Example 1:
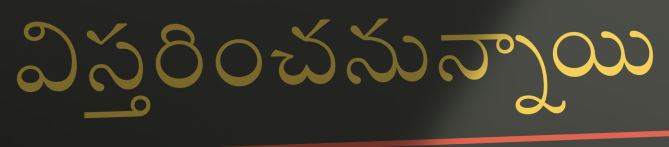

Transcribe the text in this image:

విస్తరించనున్నాయి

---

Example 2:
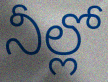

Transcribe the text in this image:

నీల్లో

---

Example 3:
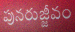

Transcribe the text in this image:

పునరుజ్జీవం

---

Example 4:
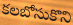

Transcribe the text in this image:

కలబోసుకొని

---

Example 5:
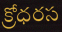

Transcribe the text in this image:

క్రోధరస